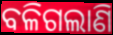
ବଳିଗଲାଣି